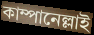
কাম্পানেল্লাই